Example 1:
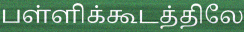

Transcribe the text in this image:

பள்ளிக்கூடத்திலே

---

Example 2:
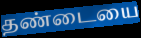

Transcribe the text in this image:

தண்டையை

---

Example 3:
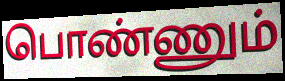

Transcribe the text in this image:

பொண்ணும்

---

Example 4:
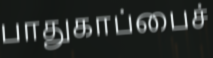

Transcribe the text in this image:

பாதுகாப்பைச்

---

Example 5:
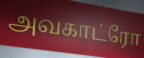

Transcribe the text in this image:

அவகாட்ரோ